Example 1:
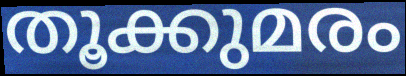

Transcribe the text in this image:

തൂക്കുമരം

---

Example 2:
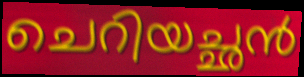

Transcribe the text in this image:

ചെറിയച്ഛൻ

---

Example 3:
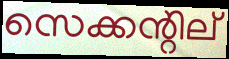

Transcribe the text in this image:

സെക്കന്റില്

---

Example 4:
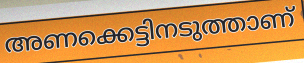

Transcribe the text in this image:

അണക്കെട്ടിനടുത്താണ്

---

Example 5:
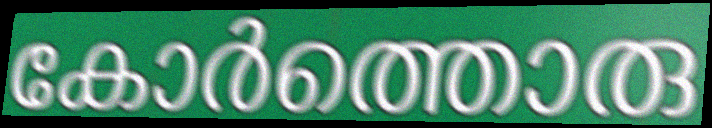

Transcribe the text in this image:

കോർത്തൊരു